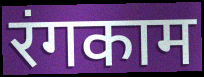
रंगकाम